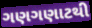
ગણગણાટથી